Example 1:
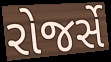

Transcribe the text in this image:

રોજર્સે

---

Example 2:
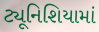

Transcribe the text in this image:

ટ્યૂનિશિયામાં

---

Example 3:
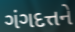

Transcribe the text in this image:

ગંગદત્તને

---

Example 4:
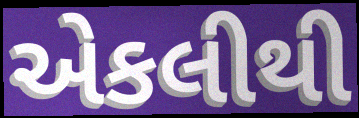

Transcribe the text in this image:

એકલીથી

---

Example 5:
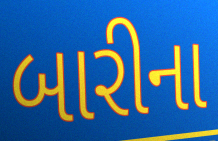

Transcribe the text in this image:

બારીના